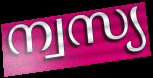
ന്വസ്യ